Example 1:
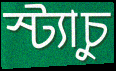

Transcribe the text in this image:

স্ট্যাচু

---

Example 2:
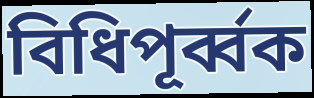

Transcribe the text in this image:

বিধিপূর্ব্বক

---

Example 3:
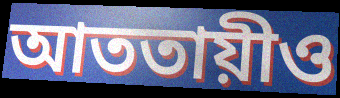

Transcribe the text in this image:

আততায়ীও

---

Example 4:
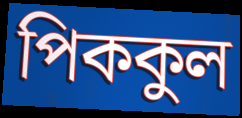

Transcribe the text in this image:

পিককুল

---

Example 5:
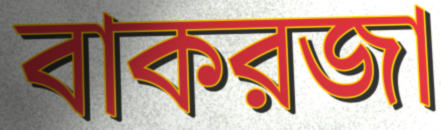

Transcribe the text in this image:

বাকরজা